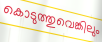
കൊടുത്തുവെങ്കിലും